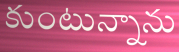
కుంటున్నాను